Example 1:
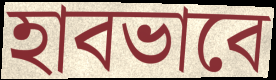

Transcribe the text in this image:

হাবভাবে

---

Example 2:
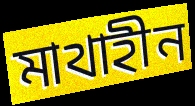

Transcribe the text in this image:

মাথাহীন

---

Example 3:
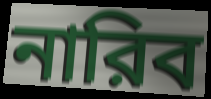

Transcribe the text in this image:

নারিব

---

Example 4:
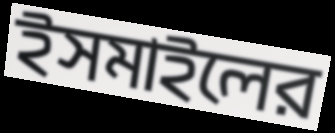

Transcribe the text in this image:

ইসমাইলের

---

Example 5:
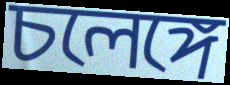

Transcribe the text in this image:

চলেঙ্গে